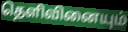
தெளிவினையும்